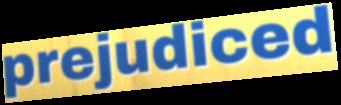
prejudiced